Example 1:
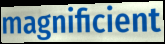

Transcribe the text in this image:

magnificient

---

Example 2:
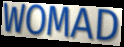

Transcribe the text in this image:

WOMAD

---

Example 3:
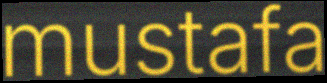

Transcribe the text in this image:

mustafa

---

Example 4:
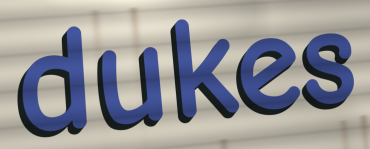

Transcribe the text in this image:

dukes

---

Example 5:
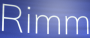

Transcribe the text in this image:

Rimm